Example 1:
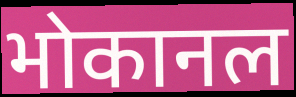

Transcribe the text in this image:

भोकानल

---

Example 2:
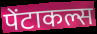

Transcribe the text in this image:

पेंटाकल्स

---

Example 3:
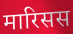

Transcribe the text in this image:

मारिसस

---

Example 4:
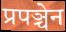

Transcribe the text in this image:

प्रपञ्चेन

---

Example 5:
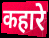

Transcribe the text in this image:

कहारे